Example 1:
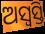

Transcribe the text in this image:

ଅସ୍ୱସ୍ତି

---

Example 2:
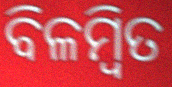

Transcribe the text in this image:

ବିଳମ୍ବିତ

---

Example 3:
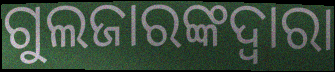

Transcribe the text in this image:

ଗୁଲଜାରଙ୍କଦ୍ୱାରା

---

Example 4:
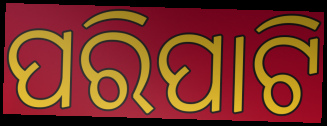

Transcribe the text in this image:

ପରିପାଟି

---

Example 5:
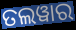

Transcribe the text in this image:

ତଲୱାର